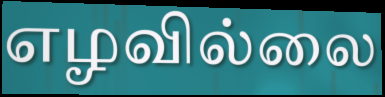
எழவில்லை